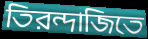
তিরন্দাজিতে